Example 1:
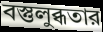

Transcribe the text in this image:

বস্তুলুব্ধতার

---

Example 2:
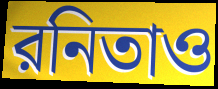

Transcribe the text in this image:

রনিতাও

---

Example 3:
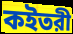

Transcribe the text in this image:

কইতরী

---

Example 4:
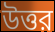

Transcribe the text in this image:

উত্তর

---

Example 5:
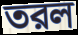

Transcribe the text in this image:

তরল